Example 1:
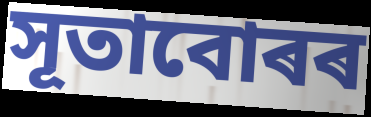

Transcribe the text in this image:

সূতাবোৰৰ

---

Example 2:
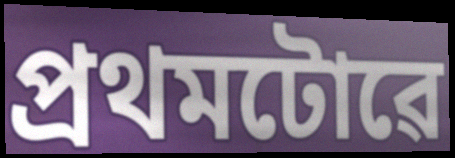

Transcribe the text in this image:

প্ৰথমটোৱে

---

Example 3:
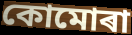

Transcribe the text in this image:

কোমোৰা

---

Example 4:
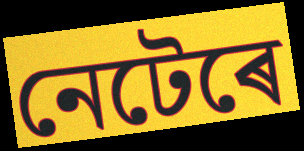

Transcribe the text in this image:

নেটেৰে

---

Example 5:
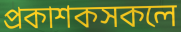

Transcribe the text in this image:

প্ৰকাশকসকলে